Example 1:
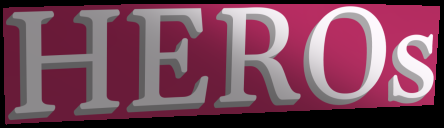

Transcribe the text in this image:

HEROs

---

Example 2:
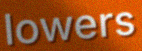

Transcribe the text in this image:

lowers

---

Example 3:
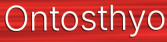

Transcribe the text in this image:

Ontosthyo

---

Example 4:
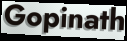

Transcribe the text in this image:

Gopinath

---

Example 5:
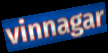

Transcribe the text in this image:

vinnagar